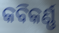
କବିକର୍ଣ୍ଣ